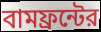
বামফ্রন্টের